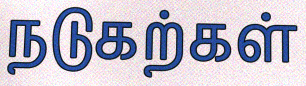
நடுகற்கள்